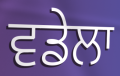
ਵਡੇਲਾ